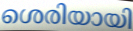
ശെരിയായി